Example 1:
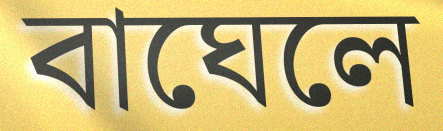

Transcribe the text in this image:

বাঘেলে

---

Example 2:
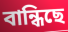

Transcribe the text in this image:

বান্ধিছে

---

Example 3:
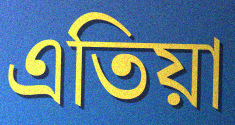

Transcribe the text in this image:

এতিয়া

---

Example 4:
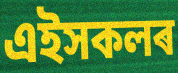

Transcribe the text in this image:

এইসকলৰ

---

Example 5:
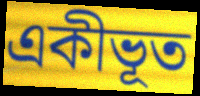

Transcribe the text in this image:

একীভূত